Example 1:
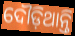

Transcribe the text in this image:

ଦୌଡ଼ିଥାନ୍ତି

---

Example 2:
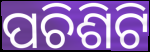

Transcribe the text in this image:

ପଚିଶିଟି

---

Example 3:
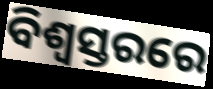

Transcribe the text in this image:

ବିଶ୍ୱସ୍ତରରେ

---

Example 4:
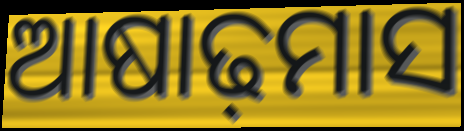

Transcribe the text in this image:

ଆଷାଢ଼ମାସ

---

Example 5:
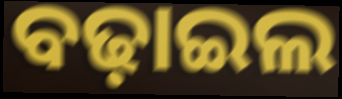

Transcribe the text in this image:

ବଢ଼ାଇଲ